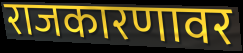
राजकारणावर